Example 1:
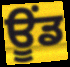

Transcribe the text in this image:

ਊਂਡ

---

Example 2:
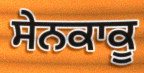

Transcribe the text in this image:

ਸੇਨਕਾਕੂ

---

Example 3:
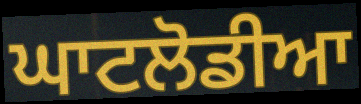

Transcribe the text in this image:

ਘਾਟਲੋਡੀਆ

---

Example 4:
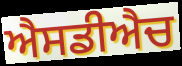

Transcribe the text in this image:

ਐਸਡੀਐਚ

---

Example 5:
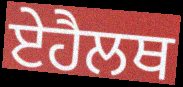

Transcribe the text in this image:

ਏਹੈਲਥ